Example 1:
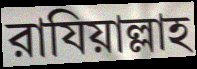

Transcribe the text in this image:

রাযিয়াল্লাহ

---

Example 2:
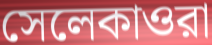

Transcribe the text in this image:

সেলেকাওরা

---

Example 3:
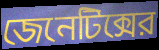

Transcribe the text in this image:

জেনেটিক্সের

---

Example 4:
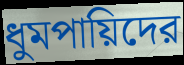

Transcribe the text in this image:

ধুমপায়িদের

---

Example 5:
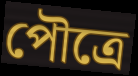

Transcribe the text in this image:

পৌত্রে